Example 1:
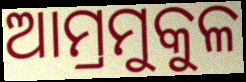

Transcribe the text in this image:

ଆମ୍ରମୁକୁଳ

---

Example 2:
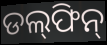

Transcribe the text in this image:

ଡଲ୍‍ଫିନ୍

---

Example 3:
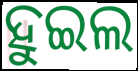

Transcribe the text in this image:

ହୁଇଲ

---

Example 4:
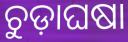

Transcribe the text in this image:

ଚୁଡ଼ାଘଷା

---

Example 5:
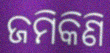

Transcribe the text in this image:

ଜମିକିଣି